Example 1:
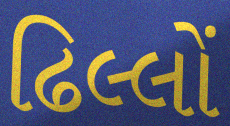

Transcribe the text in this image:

ઢિલ્લોં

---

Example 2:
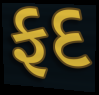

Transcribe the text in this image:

ફદ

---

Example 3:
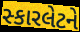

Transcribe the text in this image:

સ્કારલેટને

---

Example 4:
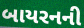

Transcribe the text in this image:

બાયરનની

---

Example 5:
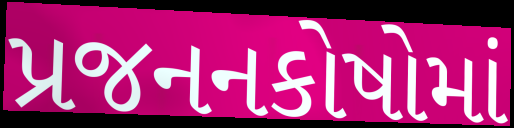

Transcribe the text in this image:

પ્રજનનકોષોમાં